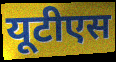
यूटीएस